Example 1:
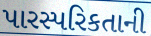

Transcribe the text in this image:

પારસ્પરિકતાની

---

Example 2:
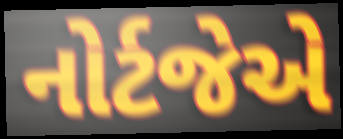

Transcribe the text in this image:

નોર્ટજેએ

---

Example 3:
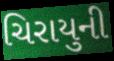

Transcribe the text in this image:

ચિરાયુની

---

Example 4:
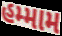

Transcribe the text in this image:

હમ્મામ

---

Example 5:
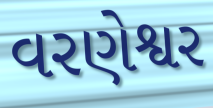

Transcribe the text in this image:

વરણેશ્વર